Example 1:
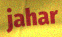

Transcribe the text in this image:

jahar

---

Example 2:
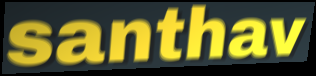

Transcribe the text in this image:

santhav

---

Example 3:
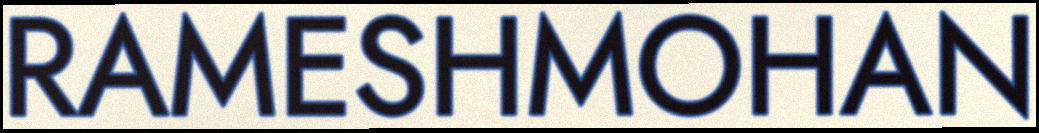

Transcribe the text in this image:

RAMESHMOHAN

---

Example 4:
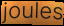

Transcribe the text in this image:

joules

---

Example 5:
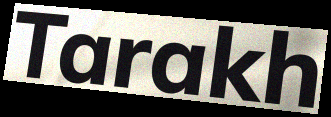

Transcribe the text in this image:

Tarakh